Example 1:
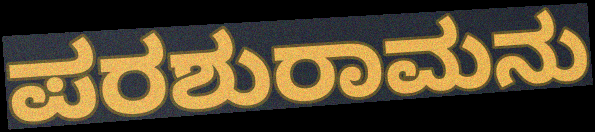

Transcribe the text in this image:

ಪರಶುರಾಮನು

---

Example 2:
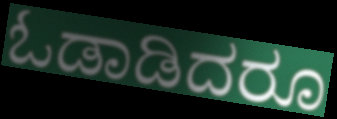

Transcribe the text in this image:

ಓಡಾಡಿದರೂ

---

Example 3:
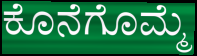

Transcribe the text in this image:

ಕೊನೆಗೊಮ್ಮೆ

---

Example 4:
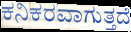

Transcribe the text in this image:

ಕನಿಕರವಾಗುತ್ತದೆ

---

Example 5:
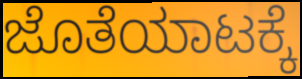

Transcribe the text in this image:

ಜೊತೆಯಾಟಕ್ಕೆ